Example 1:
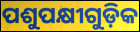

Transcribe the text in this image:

ପଶୁପକ୍ଷୀଗୁଡ଼ିକ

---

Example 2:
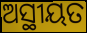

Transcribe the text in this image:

ଅସ୍ଥୀୟତ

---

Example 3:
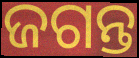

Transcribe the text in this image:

ଜଗନ୍ତ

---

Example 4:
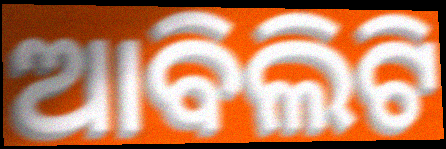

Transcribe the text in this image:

ଆବିଲିଟି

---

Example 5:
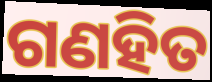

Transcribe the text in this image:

ଗଣହିତ